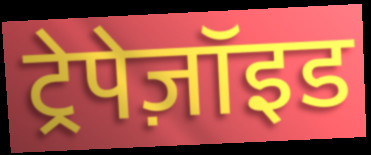
ट्रेपेज़ॉइड